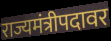
राज्यमंत्रीपदावर